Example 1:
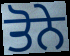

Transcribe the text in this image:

ਤੋਨੇ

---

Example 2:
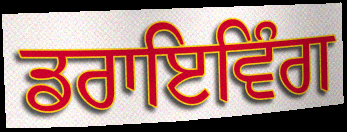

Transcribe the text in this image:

ਡਰਾਇਵਿੰਗ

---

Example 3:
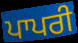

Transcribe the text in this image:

ਪਾਪਰੀ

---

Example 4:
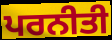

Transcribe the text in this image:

ਪਰਨੀਤੀ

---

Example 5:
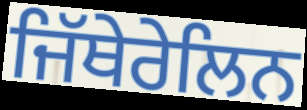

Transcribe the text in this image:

ਜਿੱਥੇਰੇਲਿਨ